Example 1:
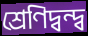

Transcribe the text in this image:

শ্রেণিদ্বন্দ্ব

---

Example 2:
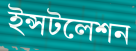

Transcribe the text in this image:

ইন্সটলেশন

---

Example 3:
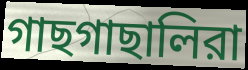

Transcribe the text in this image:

গাছগাছালিরা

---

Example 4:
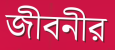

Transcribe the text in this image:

জীবনীর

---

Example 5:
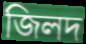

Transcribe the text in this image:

জিলদ